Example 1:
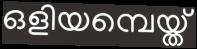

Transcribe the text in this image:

ഒളിയമ്പെയ്ത്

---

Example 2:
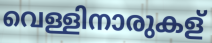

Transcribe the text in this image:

വെള്ളിനാരുകള്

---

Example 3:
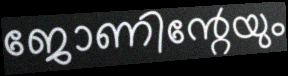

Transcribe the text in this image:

ജോണിന്റേയും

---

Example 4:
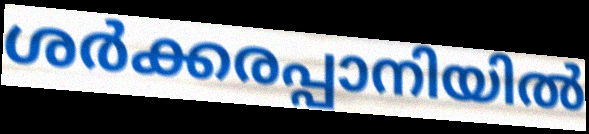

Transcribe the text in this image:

ശർക്കരപ്പാനിയിൽ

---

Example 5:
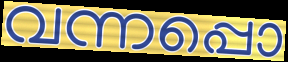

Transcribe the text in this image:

വന്നപ്പൊ